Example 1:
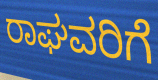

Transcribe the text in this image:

ರಾಘವರಿಗೆ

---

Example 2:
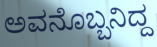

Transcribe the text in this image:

ಅವನೊಬ್ಬನಿದ್ದ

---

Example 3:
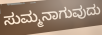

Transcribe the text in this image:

ಸುಮ್ಮನಾಗುವುದು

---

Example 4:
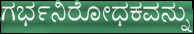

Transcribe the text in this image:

ಗರ್ಭನಿರೋಧಕವನ್ನು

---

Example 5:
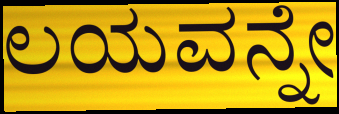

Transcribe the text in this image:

ಲಯವನ್ನೇ